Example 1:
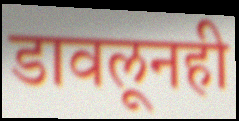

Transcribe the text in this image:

डावलूनही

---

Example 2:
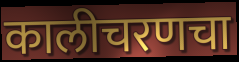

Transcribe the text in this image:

कालीचरणचा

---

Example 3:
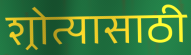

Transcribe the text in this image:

श्रोत्यासाठी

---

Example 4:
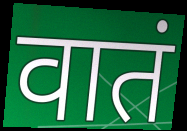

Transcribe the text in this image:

वातं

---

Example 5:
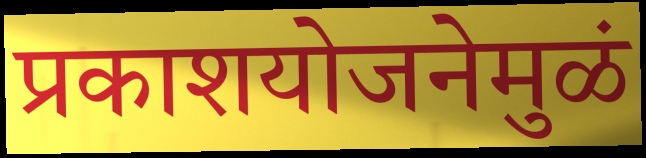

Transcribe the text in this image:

प्रकाशयोजनेमुळं